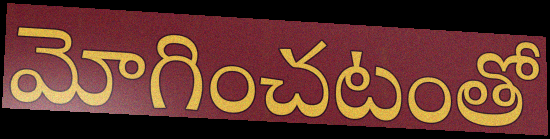
మోగించటంతో